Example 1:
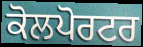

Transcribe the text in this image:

ਕੋਲਪੋਰਟਰ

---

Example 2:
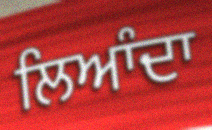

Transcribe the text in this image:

ਲਿਆੰਦਾ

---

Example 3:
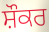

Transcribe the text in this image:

ਸ਼ੌਕਰ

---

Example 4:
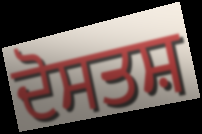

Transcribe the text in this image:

ਦੋਸਤਸ਼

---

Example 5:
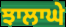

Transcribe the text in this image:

ਝਾਲਾਘੇ